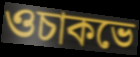
ওচাকভে